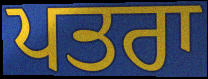
ਪਤਰਾ